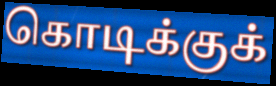
கொடிக்குக்